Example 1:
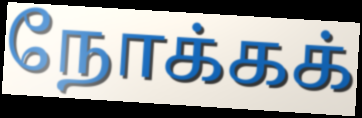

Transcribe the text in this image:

நோக்கக்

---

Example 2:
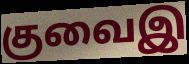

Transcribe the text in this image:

குவைஇ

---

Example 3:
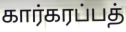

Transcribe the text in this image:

கார்கரப்பத்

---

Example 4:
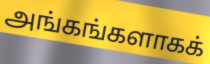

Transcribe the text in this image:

அங்கங்களாகக்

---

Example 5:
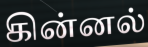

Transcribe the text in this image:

கின்னல்